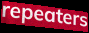
repeaters